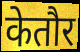
केतौर